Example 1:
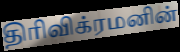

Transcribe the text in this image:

திரிவிக்ரமனின்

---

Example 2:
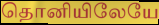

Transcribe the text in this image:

தொனியிலேயே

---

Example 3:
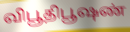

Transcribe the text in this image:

விபூதிபூஷண்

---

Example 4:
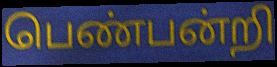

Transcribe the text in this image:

பெண்பன்றி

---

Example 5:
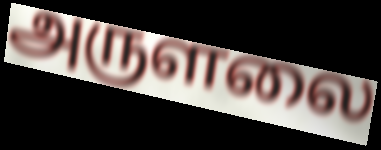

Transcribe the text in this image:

அருளலை